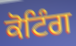
ਕੋਟਿੰਗ